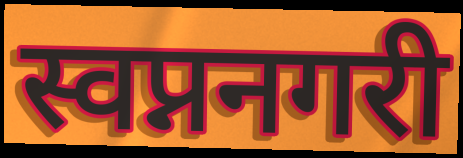
स्वप्ननगरी